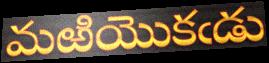
మఱియొకఁడు